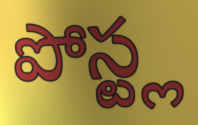
పోస్ట్ల